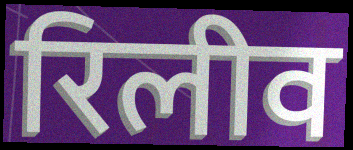
रिलीव